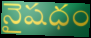
నైషధం